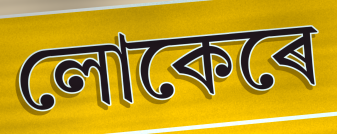
লোকেৰে